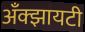
अँक्झायटी